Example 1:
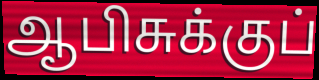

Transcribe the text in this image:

ஆபிசுக்குப்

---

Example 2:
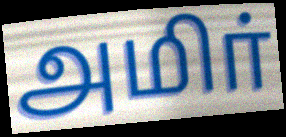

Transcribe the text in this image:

அமிர்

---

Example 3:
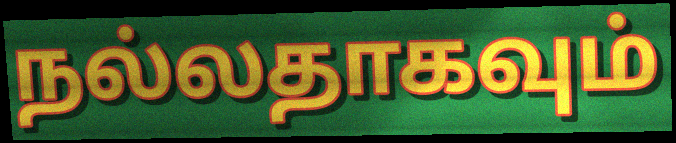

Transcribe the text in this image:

நல்லதாகவும்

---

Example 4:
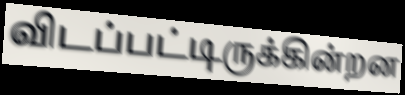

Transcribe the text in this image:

விடப்பட்டிருக்கின்றன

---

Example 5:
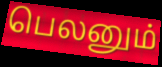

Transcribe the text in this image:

பெலனும்